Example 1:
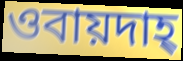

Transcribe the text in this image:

ওবায়দাহ্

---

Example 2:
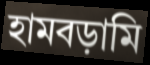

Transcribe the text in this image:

হামবড়ামি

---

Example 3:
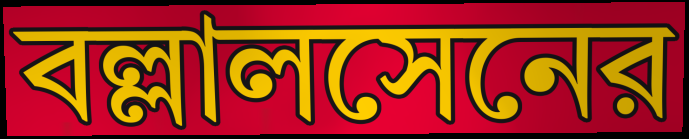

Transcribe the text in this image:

বল্লালসেনের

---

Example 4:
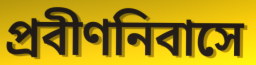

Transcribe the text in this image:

প্রবীণনিবাসে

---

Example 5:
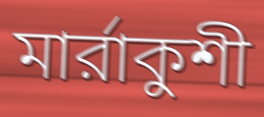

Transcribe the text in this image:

মার্রাকুশী